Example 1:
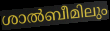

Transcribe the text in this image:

ശാൽബീമിലും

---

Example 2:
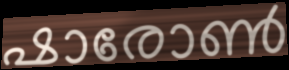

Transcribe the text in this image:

ഷാരോൺ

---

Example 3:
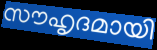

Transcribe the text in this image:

സൗഹൃദമായി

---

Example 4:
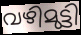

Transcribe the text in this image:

വഴിമുട്ടി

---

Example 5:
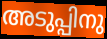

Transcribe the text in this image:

അടുപ്പിനു